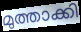
മുത്താക്കി